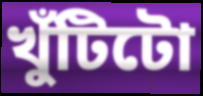
খুঁটিটো